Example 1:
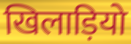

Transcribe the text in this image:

खिलाड़ियो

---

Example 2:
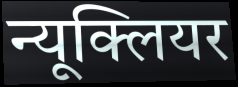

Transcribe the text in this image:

न्‍यूक्लियर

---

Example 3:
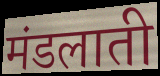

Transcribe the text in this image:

मंडलाती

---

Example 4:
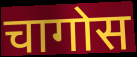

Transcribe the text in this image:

चागोस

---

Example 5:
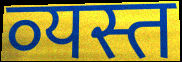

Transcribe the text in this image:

व्‍यस्‍त